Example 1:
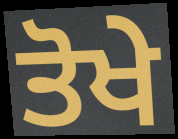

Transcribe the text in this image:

ਤੋਖੇ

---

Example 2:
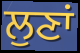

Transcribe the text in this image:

ਲੁਣਾਂ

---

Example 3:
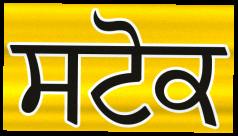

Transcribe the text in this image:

ਸਟੋਕ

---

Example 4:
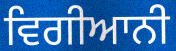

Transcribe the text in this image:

ਵਿਗੀਆਨੀ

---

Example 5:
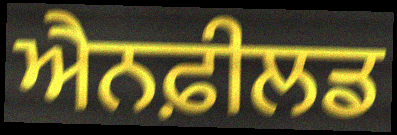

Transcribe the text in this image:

ਐਨਫ਼ੀਲਡ